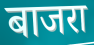
बाजरा